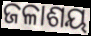
ଜଳାଶୟ